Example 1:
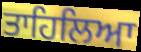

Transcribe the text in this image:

ਤਾਹਿਲਿਆ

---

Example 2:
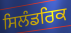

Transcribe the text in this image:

ਸਿਲੰਡਰਿਕ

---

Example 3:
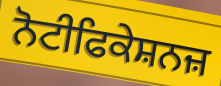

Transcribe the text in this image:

ਨੋਟੀਫਿਕੇਸ਼ਨਜ਼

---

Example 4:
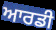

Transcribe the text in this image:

ਆਰਡੀ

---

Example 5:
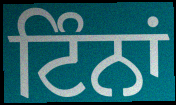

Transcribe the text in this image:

ਟਿੰਨਾਂ